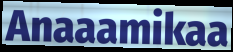
Anaaamikaa